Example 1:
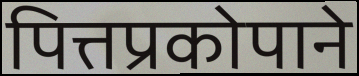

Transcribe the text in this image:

पित्तप्रकोपाने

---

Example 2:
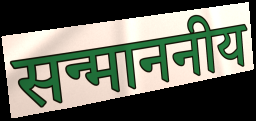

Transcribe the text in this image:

सन्माननीय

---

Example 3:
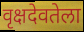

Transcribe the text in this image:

वृक्षदेवतेला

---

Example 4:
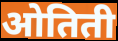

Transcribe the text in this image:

ओतिती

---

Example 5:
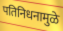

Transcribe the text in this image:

पतिनिधनामुळे